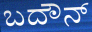
ಬದೌನ್